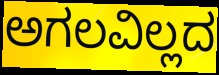
ಅಗಲವಿಲ್ಲದ